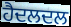
ਹੈਦਲਦਲ